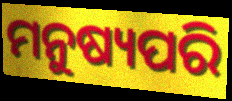
ମନୁଷ୍ୟପରି